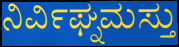
ನಿರ್ವಿಘ್ನಮಸ್ತು